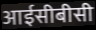
आईसीबीसी